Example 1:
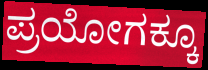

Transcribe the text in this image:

ಪ್ರಯೋಗಕ್ಕೂ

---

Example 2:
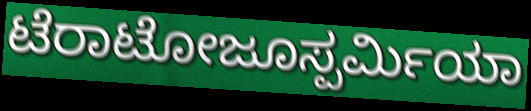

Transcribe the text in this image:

ಟೆರಾಟೋಜೂಸ್ಪರ್ಮಿಯಾ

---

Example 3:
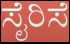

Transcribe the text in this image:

ಸೈರಿಸೆ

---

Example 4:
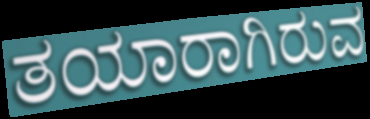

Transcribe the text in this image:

ತಯಾರಾಗಿರುವ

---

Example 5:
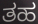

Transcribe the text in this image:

ತಹ